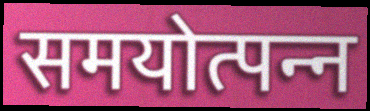
समयोत्पन्न